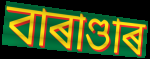
বাৰাণ্ডাৰ